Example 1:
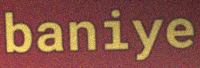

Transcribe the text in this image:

baniye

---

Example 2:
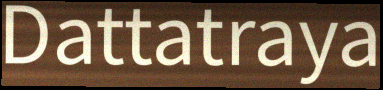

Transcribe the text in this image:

Dattatraya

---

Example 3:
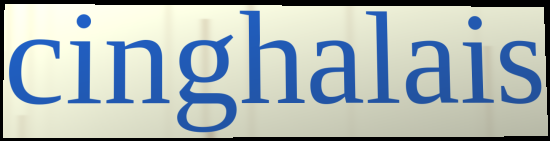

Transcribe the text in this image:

cinghalais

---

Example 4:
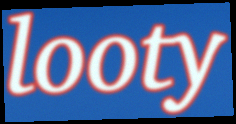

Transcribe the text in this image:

looty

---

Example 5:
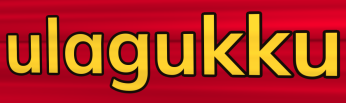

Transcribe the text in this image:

ulagukku